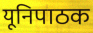
यूनिपाठक